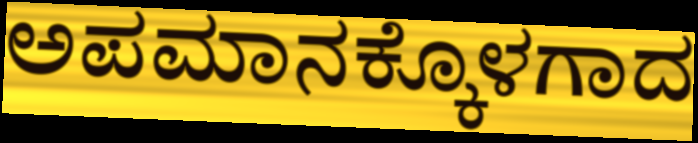
ಅಪಮಾನಕ್ಕೊಳಗಾದ